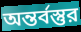
অন্তর্বস্তুর